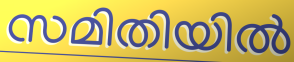
സമിതിയിൽ